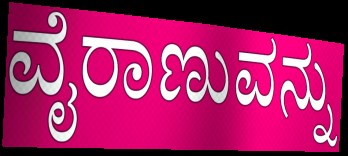
ವೈರಾಣುವನ್ನು